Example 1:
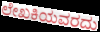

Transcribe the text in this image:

ಲೇಖಕಿಯವರದು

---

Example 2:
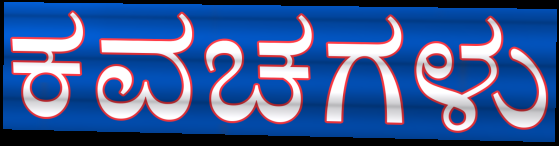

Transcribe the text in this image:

ಕವಚಗಳು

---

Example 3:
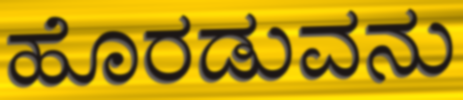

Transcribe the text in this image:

ಹೊರಡುವನು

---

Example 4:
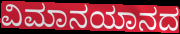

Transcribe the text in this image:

ವಿಮಾನಯಾನದ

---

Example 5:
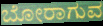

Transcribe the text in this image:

ಬೋರಾಗುವ